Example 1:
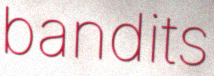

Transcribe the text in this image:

bandits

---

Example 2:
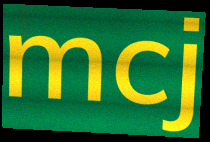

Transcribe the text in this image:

mcj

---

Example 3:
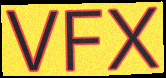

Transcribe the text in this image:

VFX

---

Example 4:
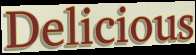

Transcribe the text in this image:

Delicious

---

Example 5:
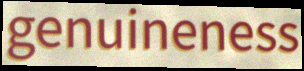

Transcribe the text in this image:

genuineness